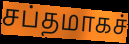
சப்தமாகச்